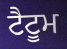
ਟੈਟੂਮ